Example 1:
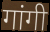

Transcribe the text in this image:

गांगी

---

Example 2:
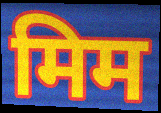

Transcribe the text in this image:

मिम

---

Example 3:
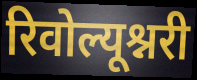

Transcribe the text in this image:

रिवोल्यूश्नरी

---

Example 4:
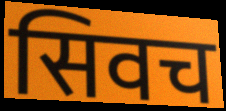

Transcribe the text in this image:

सिवच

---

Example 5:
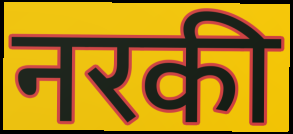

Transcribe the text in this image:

नरकी